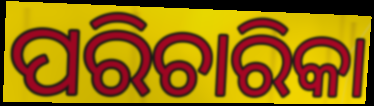
ପରିଚାରିକା